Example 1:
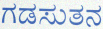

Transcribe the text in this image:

ಗಡಸುತನ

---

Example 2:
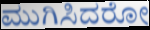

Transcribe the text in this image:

ಮುಗಿಸಿದರೋ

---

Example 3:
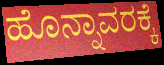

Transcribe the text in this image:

ಹೊನ್ನಾವರಕ್ಕೆ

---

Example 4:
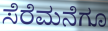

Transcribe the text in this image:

ಸೆರೆಮನೆಗೂ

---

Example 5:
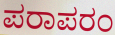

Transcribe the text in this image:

ಪರಾಪರಂ